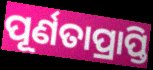
ପୂର୍ଣତାପ୍ରାପ୍ତି